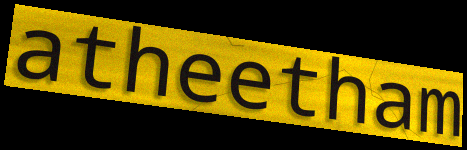
atheetham